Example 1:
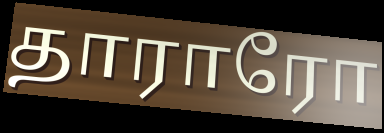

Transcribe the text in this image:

தாராரோ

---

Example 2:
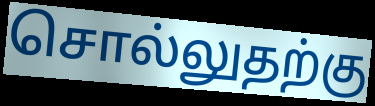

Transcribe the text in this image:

சொல்லுதற்கு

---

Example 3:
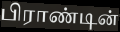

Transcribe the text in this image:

பிராண்டின்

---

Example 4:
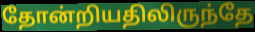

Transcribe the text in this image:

தோன்றியதிலிருந்தே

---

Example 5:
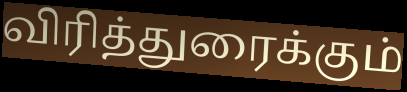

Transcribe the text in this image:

விரித்துரைக்கும்